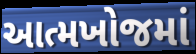
આત્મખોજમાં